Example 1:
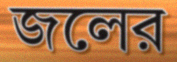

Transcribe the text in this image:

জলের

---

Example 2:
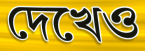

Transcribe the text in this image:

দেখেও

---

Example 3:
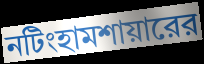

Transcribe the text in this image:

নটিংহামশায়ারের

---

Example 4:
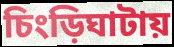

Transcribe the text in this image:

চিংড়িঘাটায়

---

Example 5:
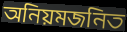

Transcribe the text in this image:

অনিয়মজনিত